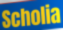
Scholia